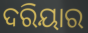
ଦରିୟାର